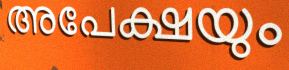
അപേക്ഷയും